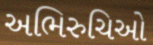
અભિરુચિઓ